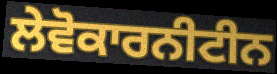
ਲੇਵੋਕਾਰਨੀਟੀਨ